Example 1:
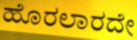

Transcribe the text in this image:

ಹೊರಲಾರದೇ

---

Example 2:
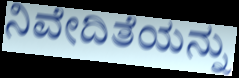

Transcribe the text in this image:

ನಿವೇದಿತೆಯನ್ನು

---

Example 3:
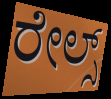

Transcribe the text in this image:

ರೇಲ್ಸ್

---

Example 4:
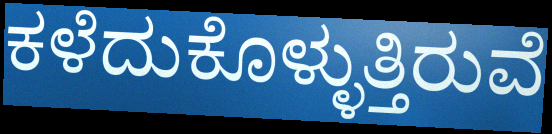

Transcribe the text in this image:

ಕಳೆದುಕೊಳ್ಳುತ್ತಿರುವೆ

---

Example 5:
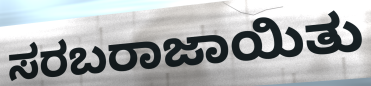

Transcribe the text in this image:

ಸರಬರಾಜಾಯಿತು